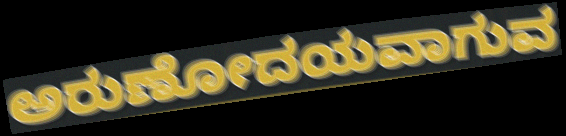
ಅರುಣೋದಯವಾಗುವ